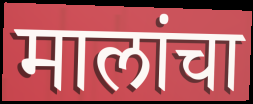
मालांचा